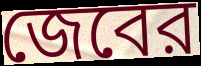
জেবের